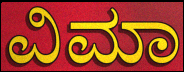
ವಿಮಾ